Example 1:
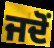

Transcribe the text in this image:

ਜਦੋਂ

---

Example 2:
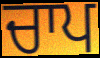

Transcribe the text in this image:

ਚਾਪ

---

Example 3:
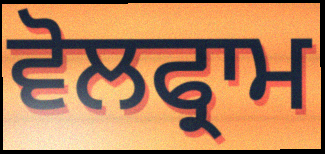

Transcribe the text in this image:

ਵੋਲਫ੍ਰਾਮ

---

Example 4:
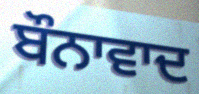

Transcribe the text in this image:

ਬੌਨਾਵਾਦ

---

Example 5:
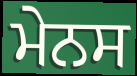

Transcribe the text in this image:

ਮੇਨਸ